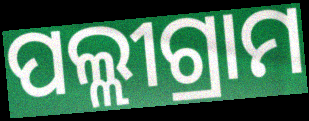
ପଲ୍ଲୀଗ୍ରାମ